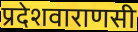
प्रदेशवाराणसी